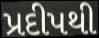
પ્રદીપથી